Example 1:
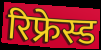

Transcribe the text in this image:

रिफ्रेस्ड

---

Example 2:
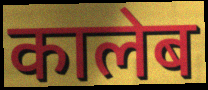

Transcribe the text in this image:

कालेब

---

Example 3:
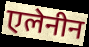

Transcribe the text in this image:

एलेनीन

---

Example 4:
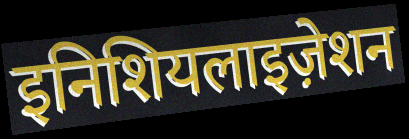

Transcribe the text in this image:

इनिशियलाइज़ेशन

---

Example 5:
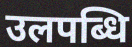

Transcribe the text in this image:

उलपब्धि